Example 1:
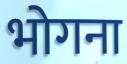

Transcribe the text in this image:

भोगना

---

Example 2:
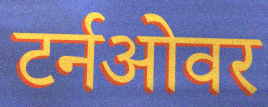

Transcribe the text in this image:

टर्नओवर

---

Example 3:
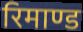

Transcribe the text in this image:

रिमाण्ड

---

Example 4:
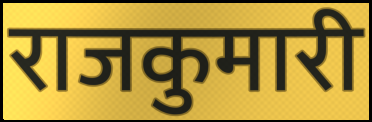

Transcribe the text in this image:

राजकुमारी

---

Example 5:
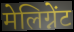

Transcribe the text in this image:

मेलिग्नेंट